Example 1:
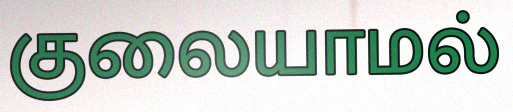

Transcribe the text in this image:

குலையாமல்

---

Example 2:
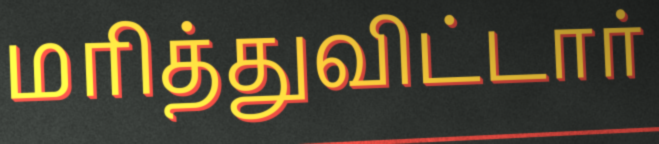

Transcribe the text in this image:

மரித்துவிட்டார்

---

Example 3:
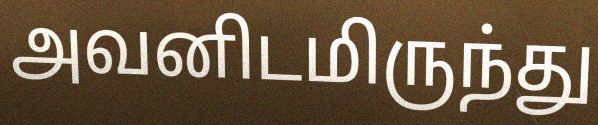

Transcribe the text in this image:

அவனிடமிருந்து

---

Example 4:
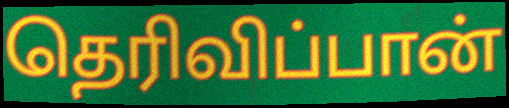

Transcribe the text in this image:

தெரிவிப்பான்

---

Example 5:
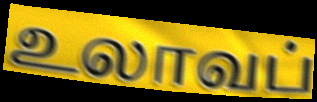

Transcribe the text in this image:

உலாவப்